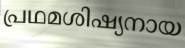
പ്രഥമശിഷ്യനായ